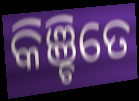
କିଞ୍ଚିତେ